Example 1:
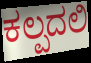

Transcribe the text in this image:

ಕಲ್ಪದಲಿ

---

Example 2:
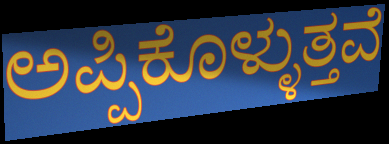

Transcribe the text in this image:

ಅಪ್ಪಿಕೊಳ್ಳುತ್ತವೆ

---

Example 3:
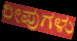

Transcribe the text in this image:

ರೀಪುಗಳು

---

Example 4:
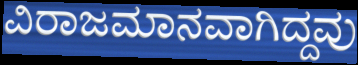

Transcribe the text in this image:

ವಿರಾಜಮಾನವಾಗಿದ್ದವು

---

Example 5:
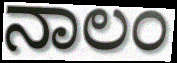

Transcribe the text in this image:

ನಾಲಂ